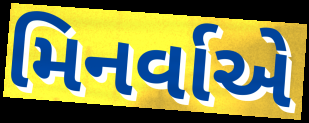
મિનર્વાએ